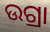
ଉଗ୍ରା